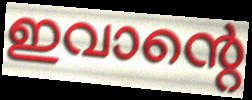
ഇവാന്റെ